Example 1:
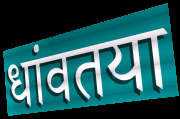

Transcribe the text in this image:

धांवतया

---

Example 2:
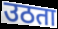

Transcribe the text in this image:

उठता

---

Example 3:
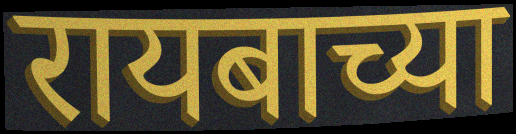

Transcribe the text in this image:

रायबाच्या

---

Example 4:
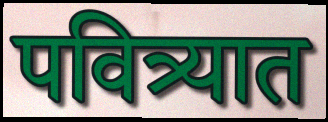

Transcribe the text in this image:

पवित्र्यात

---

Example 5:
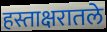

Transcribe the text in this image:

हस्ताक्षरातले